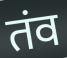
तंव